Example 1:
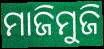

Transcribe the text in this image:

ମାଜିମୁଜି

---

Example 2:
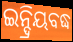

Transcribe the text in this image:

ଇନ୍ଦ୍ରିୟବଦ୍ଧ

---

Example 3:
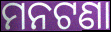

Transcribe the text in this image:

ମନଟଣା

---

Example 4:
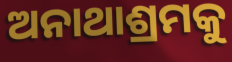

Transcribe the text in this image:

ଅନାଥାଶ୍ରମକୁ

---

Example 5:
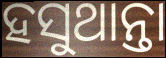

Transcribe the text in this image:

ହସୁଥାନ୍ତା